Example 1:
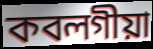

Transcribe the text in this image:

কবলগীয়া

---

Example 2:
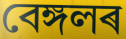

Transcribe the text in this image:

বেঙ্গলৰ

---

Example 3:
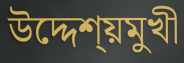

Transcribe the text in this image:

উদ্দেশ্য়মুখী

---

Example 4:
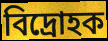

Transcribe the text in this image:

বিদ্ৰোহক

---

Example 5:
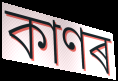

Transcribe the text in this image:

কাণৰ